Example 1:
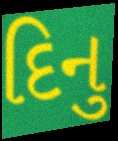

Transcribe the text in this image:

દિનુ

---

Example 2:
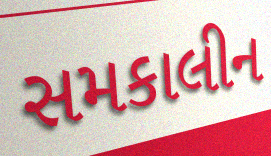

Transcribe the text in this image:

સમકાલીન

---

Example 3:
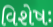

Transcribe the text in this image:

વિશેષઃ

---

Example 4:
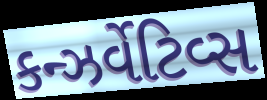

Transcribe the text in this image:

કન્ઝર્વેટિવ્સ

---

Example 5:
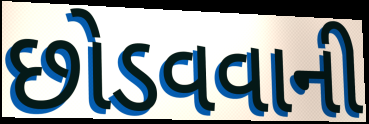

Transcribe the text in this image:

છોડવવાની